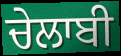
ਚੇਲਾਬੀ